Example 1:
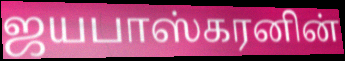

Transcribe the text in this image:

ஜயபாஸ்கரனின்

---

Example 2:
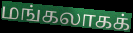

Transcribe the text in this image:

மங்கலாகக்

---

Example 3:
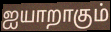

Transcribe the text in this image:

ஐயாறாகும்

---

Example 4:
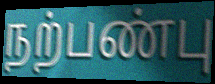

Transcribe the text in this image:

நற்பண்பு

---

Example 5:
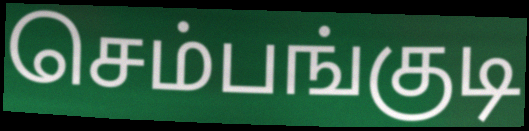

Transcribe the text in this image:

செம்பங்குடி